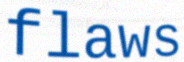
flaws